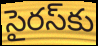
సైరస్‌కు